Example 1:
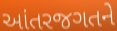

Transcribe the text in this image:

આંતરજગતને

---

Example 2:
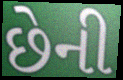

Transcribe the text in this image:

છેની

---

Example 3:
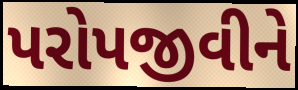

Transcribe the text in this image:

પરોપજીવીને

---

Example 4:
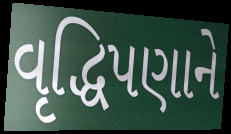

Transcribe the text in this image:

વૃદ્ધિપણાને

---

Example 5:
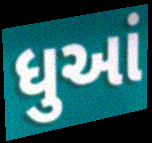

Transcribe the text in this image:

ધુઆં